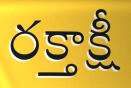
రక్తాక్షీ